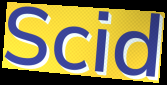
Scid